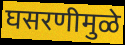
घसरणीमुळे